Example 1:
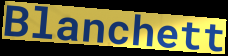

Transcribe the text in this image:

Blanchett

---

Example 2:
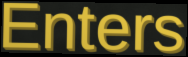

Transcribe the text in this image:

Enters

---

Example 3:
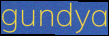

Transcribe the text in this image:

gundya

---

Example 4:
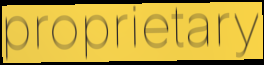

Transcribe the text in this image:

proprietary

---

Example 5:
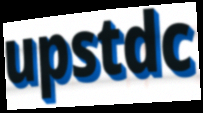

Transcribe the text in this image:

upstdc